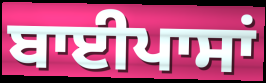
ਬਾਈਪਾਸਾਂ